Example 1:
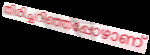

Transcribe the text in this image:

തിരിച്ചറിഞ്ഞപ്പോഴാണ്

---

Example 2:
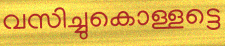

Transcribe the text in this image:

വസിച്ചുകൊള്ളട്ടെ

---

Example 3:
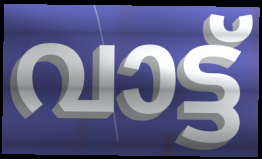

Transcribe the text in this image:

വാട്ട്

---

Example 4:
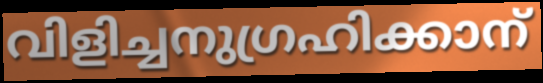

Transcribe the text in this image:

വിളിച്ചനുഗ്രഹിക്കാന്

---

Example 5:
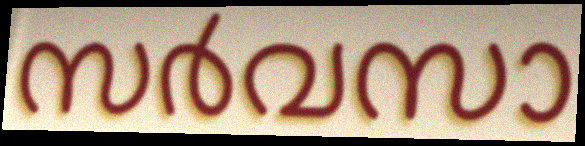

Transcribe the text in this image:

സർവസാ